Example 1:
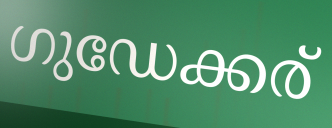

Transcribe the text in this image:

ഗുഡേക്കര്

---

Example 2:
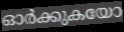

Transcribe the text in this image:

ഓർക്കുകയോ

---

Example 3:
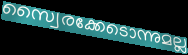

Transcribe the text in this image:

സ്വൈരക്കേടൊന്നുമല്ല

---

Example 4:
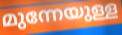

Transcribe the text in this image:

മുന്നേയുള്ള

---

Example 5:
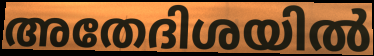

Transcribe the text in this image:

അതേദിശയിൽ